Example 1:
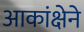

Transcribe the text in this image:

आकांक्षेने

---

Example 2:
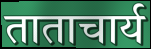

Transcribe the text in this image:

ताताचार्य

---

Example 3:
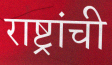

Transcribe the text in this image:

राष्ट्रांची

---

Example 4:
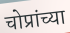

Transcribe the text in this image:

चोप्रांच्या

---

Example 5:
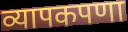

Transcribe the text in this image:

व्यापकपणा